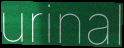
urinal